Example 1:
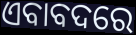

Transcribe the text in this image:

ଏବାବଦରେ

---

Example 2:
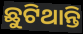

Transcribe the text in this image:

ଛୁଟିଥାନ୍ତି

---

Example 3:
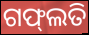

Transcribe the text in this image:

ଗଫ୍‌ଲତି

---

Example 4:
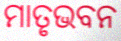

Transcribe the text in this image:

ମାତୃଭବନ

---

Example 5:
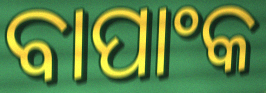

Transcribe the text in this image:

ବାପାଂକ